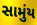
સામુંય